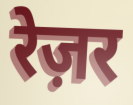
रेज़र